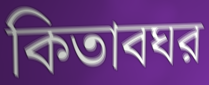
কিতাবঘর